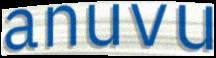
anuvu